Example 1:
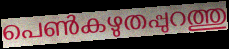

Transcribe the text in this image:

പെൺകഴുതപ്പുറത്തു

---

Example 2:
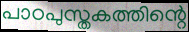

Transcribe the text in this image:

പാഠപുസ്തകത്തിന്റെ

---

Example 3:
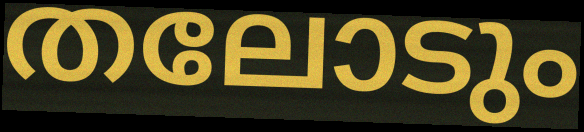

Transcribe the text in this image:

തലോടും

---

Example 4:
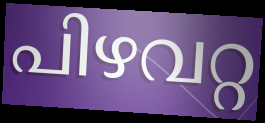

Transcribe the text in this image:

പിഴവറ്റ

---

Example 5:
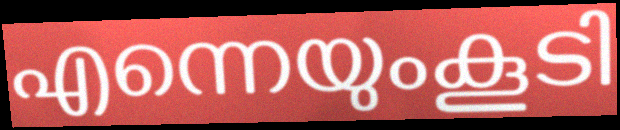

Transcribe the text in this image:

എന്നെയുംകൂടി